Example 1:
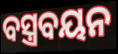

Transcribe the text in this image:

ବସ୍ତ୍ରବୟନ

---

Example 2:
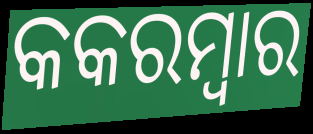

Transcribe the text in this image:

କକରମ୍ବାର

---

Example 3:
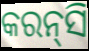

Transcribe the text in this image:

କରନ୍‌ସି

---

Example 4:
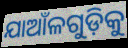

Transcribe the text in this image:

ଯାଆଁଳଗୁଡ଼ିକୁ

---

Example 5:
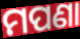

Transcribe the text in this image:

ମପଣା